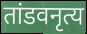
तांडवनृत्य